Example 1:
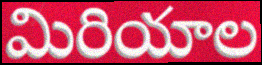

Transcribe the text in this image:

మిరియాల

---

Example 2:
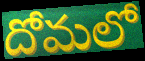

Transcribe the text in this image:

దోమలో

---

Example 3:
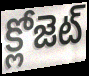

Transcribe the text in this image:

క్లోజెట్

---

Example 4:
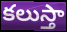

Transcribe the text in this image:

కలుస్తా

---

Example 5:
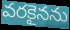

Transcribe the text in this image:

వరకైనను